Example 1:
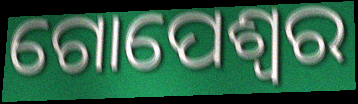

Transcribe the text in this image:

ଗୋପେଶ୍ଵର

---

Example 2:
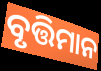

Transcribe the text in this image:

ବୃତ୍ତିମାନ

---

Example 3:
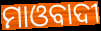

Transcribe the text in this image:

ମାଓବାଦୀ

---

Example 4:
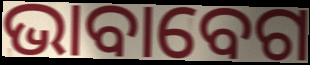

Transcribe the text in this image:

ଭାବାବେଗ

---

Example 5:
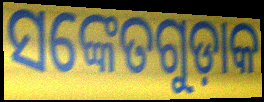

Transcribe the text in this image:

ସଙ୍କେତଗୁଡ଼ାକ